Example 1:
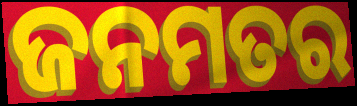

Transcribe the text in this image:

ଜନମତର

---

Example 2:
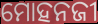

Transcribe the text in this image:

ମୋହନଜୀ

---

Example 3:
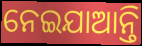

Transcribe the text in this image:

ନେଇଯାଆନ୍ତି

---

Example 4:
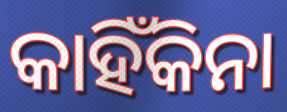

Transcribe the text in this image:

କାହିଁକିନା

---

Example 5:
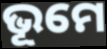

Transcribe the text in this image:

ଭୂମେ